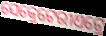
ସେକ୍ରେଟେରୀଏଟ୍ରେ